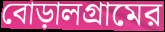
বোড়ালগ্রামের